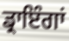
ਡ੍ਰਾਇੰਗਾਂ